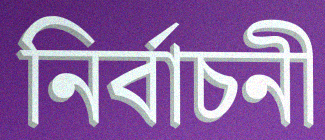
নিৰ্বাচনী